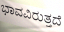
ಭಾವವಿರುತ್ತದೆ